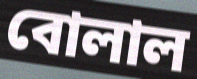
বোলাল